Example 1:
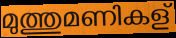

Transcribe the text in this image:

മുത്തുമണികള്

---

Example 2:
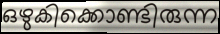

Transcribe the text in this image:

ഒഴുകിക്കൊണ്ടിരുന്ന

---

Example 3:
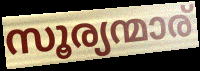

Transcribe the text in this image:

സൂര്യന്മാര്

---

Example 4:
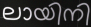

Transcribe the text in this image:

ലായിനി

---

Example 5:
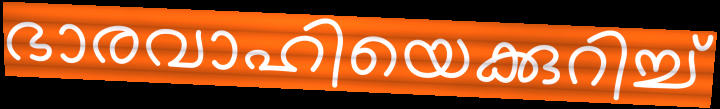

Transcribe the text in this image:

ഭാരവാഹിയെക്കുറിച്ച്